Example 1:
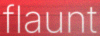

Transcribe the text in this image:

flaunt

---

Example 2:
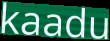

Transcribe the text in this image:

kaadu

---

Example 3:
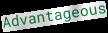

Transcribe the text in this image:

Advantageous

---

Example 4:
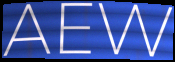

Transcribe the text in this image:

AEW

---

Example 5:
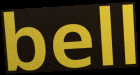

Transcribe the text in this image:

bell